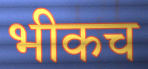
भीकच